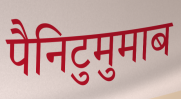
पैनिटुमुमाब